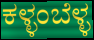
ಕಳ್ಳಂಬೆಳ್ಳ